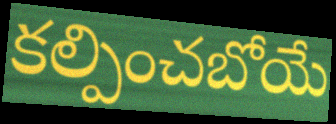
కల్పించబోయే